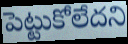
పెట్టుకోలేదని